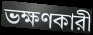
ভক্ষণকারী